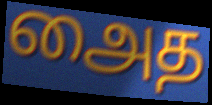
அைத